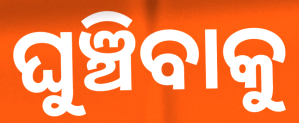
ଘୁଞ୍ଚିବାକୁ